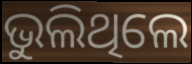
ଭୁଲିଥିଲେ